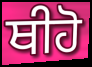
ਥੀਹੋ